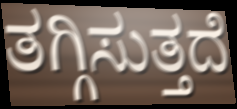
ತಗ್ಗಿಸುತ್ತದೆ